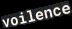
voilence